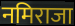
नमिराजा